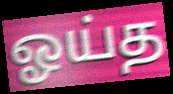
ஓய்த